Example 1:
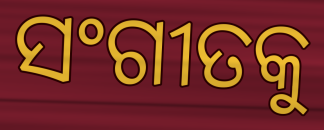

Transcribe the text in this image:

ସଂଗୀତକୁ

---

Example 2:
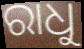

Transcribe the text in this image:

ରାଧୁ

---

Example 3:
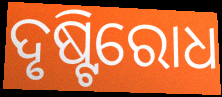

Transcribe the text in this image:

ଦୃଷ୍ଟିରୋଧ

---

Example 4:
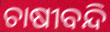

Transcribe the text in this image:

ଚାଷୀବନ୍ଦି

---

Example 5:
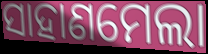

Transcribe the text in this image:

ସାହାଣମେଲା